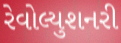
રેવોલ્યુશનરી